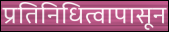
प्रतिनिधित्वापासून